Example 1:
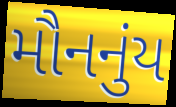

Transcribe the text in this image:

મૌનનુંય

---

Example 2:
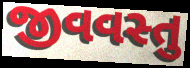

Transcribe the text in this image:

જીવવસ્તુ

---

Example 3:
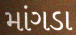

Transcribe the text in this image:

માંગડા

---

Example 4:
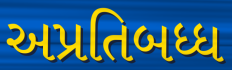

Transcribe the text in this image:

અપ્રતિબધ્ધ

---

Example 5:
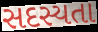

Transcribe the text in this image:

સદસ્યતા